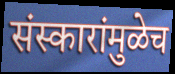
संस्कारांमुळेच